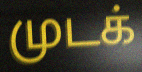
முடக்